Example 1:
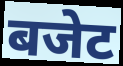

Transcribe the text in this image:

बजेट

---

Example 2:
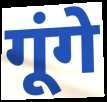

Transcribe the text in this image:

गूंगे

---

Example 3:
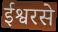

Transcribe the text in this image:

ईश्वरसे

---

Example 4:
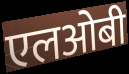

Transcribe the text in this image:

एलओबी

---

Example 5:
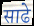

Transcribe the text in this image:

साढे